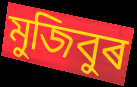
মুজিবুৰ